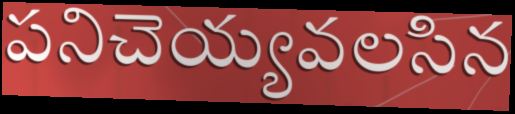
పనిచెయ్యవలసిన